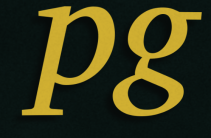
pg